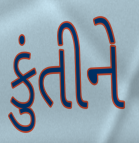
કુંતીને